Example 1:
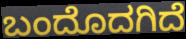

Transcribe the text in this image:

ಬಂದೊದಗಿದೆ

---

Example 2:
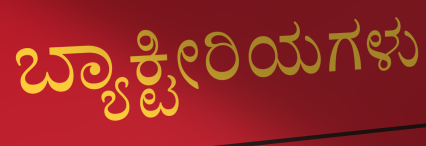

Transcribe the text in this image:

ಬ್ಯಾಕ್ಟೀರಿಯಗಳು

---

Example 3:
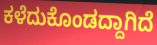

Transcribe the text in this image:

ಕಳೆದುಕೊಂಡದ್ದಾಗಿದೆ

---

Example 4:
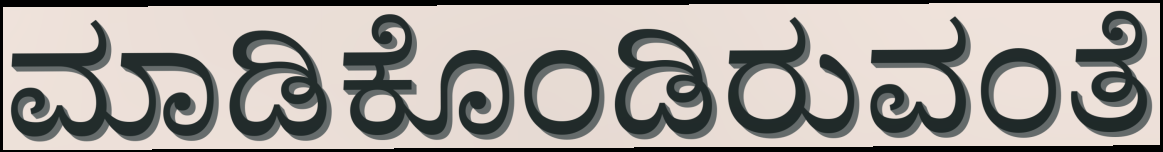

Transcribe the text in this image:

ಮಾಡಿಕೊಂಡಿರುವಂತೆ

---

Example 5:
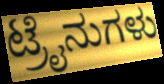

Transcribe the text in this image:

ಟ್ರೈನುಗಳು